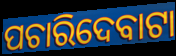
ପଚାରିଦେବାଟା